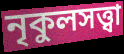
নৃকুলসত্ত্বা